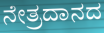
ನೇತ್ರದಾನದ